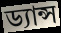
ড্যান্স